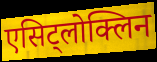
एसिट्लोक्लिन